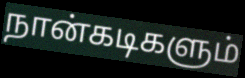
நான்கடிகளும்